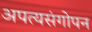
अपत्यसंगोपन